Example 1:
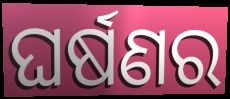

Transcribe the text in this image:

ଘର୍ଷଣର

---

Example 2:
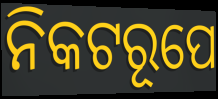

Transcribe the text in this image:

ନିକଟରୂପେ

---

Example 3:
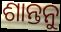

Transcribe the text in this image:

ଶାନ୍ତନୁ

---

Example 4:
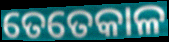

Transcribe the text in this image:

ତେତେକାଳ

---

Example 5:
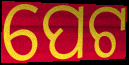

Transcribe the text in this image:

ପେଟ